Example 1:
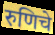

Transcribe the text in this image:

रुणिचे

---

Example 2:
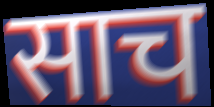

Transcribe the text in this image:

साच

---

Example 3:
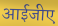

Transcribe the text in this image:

आईजीए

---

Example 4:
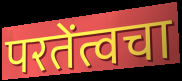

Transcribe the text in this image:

परतेंत्वचा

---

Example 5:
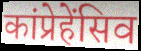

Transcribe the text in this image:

कांप्रेहेंसिव